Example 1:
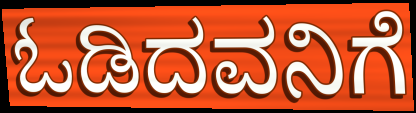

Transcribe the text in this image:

ಓಡಿದವನಿಗೆ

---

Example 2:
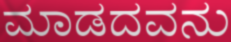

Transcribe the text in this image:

ಮಾಡದವನು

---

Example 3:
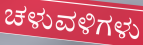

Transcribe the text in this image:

ಚಳುವಳಿಗಳು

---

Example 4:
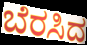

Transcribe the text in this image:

ಬೆರಸಿದ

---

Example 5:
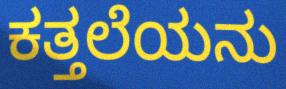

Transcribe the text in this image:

ಕತ್ತಲೆಯನು